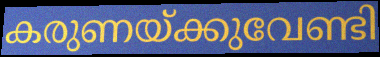
കരുണയ്ക്കുവേണ്ടി